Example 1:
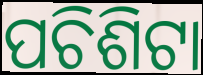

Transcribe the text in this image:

ପଚିଶିଟା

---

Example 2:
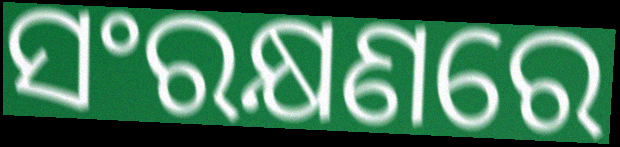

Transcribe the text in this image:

ସଂରକ୍ଷଣରେ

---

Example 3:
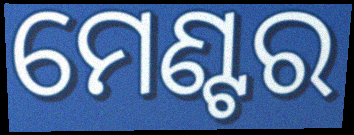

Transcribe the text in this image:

ମେଣ୍ଟର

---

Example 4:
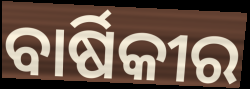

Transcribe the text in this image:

ବାର୍ଷିକୀର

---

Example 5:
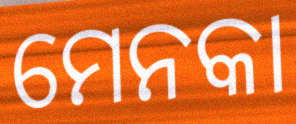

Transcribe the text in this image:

ମେନକା